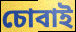
চোবাই